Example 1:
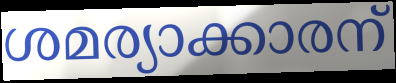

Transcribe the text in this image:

ശമര്യാക്കാരന്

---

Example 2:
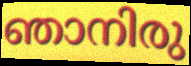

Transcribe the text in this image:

ഞാനിരു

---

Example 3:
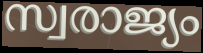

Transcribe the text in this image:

സ്വരാജ്യം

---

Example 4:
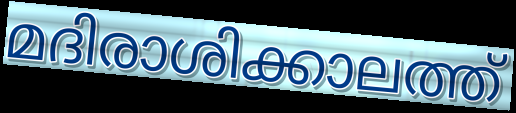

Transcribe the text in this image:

മദിരാശിക്കാലത്ത്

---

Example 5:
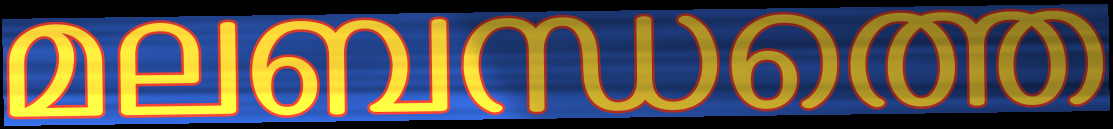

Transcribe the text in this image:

മലബന്ധത്തെ